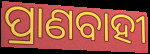
ପ୍ରାଣବାହୀ